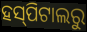
ହସ୍‌ପିଟାଲରୁ